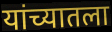
यांच्यातला